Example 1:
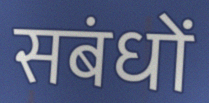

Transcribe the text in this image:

सबंधों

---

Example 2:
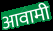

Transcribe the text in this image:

आवामी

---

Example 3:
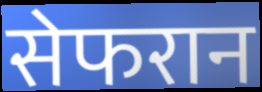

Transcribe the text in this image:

सेफरान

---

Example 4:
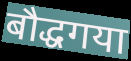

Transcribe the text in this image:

बौद्धगया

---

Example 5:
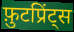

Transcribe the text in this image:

फ़ुटप्रिंट्स